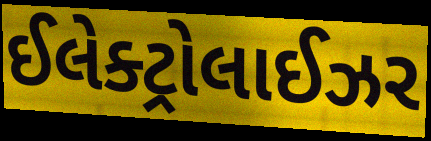
ઈલેક્ટ્રોલાઈઝર